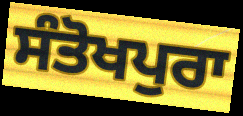
ਸੰਤੋਖਪੁਰਾ